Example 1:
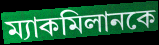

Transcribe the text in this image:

ম্যাকমিলানকে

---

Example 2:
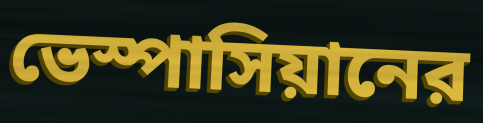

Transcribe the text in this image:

ভেস্পাসিয়ানের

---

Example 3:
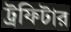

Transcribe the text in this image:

ট্রফিটার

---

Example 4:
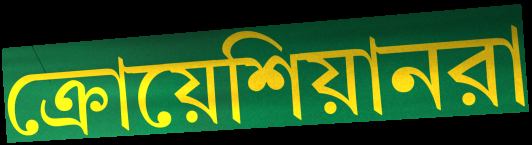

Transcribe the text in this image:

ক্রোয়েশিয়ানরা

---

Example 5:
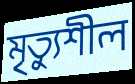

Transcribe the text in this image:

মৃত্যুশীল